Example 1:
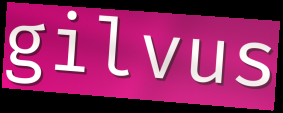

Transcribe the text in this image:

gilvus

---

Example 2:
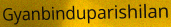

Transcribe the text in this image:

Gyanbinduparishilan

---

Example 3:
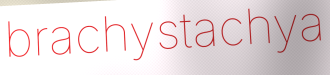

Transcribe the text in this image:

brachystachya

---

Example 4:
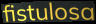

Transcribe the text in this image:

fistulosa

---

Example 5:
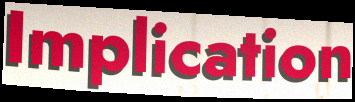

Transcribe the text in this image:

Implication